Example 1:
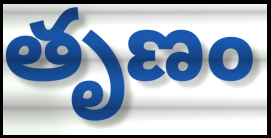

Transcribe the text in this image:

తృణం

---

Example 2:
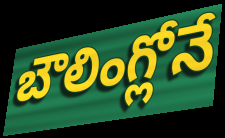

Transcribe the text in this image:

బౌలింగ్లోనే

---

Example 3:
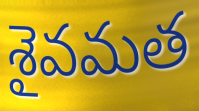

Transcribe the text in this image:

శైవమత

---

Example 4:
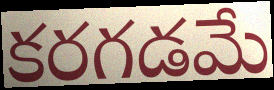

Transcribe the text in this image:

కరగడమే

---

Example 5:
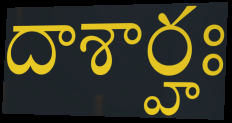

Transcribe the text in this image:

దాశార్హః